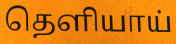
தெளியாய்